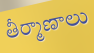
తీర్మాణాలు